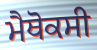
ਮੈਥੋਕਸੀ